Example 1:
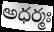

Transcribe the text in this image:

అధర్మః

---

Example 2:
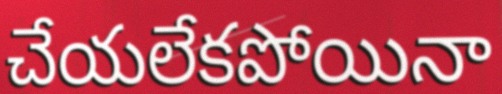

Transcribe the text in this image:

చేయలేకపోయినా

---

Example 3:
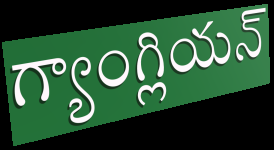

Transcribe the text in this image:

గ్యాంగ్లియన్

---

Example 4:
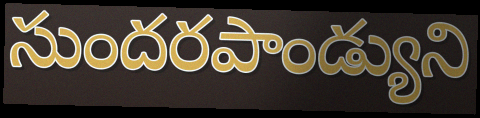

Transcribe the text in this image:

సుందరపాండ్యుని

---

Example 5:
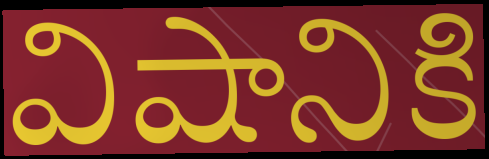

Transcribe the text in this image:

విషానికి